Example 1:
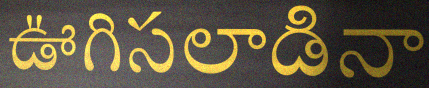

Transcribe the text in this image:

ఊగిసలాడినా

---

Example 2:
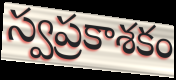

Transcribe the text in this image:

స్వప్రకాశకం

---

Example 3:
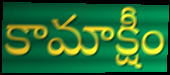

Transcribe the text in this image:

కామాక్షీం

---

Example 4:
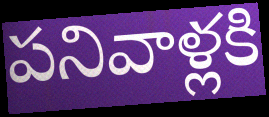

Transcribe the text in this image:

పనివాళ్లకి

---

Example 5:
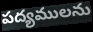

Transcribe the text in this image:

పద్యములను